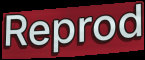
Reprod